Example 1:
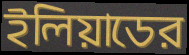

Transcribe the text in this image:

ইলিয়াডের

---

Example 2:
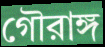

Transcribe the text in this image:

গৌরাঙ্গ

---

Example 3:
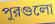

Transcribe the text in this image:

পুরগুলো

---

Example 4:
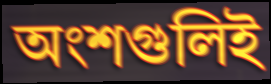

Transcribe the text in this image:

অংশগুলিই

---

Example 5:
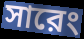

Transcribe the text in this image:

সারেং